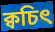
ক্বচিৎ